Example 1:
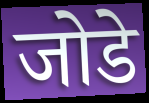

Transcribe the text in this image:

जोडे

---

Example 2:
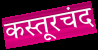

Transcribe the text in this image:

कस्तूरचंद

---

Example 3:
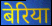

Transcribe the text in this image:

बेरिया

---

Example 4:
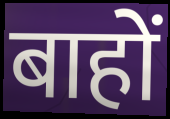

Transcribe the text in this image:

बाहों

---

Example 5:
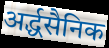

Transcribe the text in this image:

अर्द्धसैनिक